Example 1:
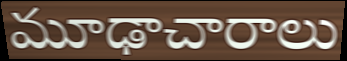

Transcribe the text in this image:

మూఢాచారాలు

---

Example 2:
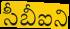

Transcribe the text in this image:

సీబీఐని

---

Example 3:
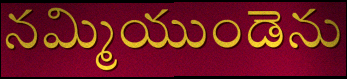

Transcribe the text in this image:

నమ్మియుండెను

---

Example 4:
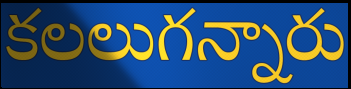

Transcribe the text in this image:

కలలుగన్నారు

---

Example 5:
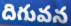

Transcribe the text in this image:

దిగువన